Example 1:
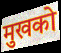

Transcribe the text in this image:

मुखको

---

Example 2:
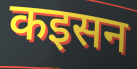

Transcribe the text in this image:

कइसन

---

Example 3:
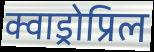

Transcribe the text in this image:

क्वाड्रोप्रिल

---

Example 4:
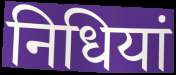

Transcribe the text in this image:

निधियां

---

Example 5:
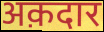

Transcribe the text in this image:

अक़दार